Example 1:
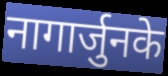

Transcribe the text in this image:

नागार्जुनके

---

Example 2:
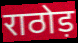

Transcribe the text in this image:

राठोड़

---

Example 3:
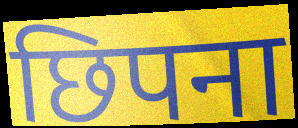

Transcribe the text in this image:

छिपना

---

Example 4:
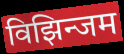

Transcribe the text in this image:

विझिन्जम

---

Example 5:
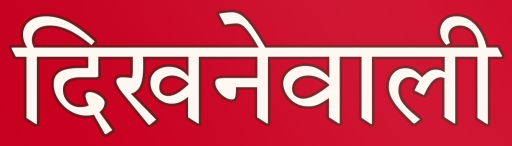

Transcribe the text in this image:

दिखनेवाली